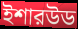
ইশারউড